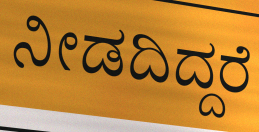
ನೀಡದಿದ್ದರೆ